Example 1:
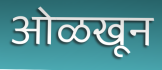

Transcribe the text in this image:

ओळखून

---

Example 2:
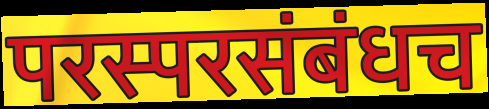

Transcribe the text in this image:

परस्परसंबंधच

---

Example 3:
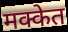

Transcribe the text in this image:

मक्केत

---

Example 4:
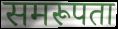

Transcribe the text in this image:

समरूपता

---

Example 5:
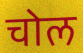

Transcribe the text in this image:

चोल